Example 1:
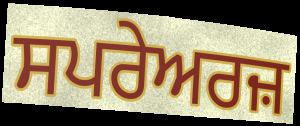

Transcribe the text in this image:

ਸਪਰੇਅਰਜ਼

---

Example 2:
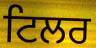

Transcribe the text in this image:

ਟਿਲਰ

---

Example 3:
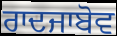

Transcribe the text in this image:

ਰਾਦਜਾਬੋਵ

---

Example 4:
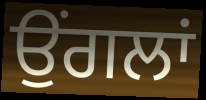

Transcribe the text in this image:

ਉਂਗਲਾਂ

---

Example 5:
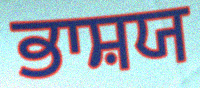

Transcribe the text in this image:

ਭਾਸ਼ਯ